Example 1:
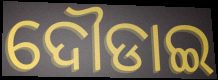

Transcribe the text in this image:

ଦୌଡାଇ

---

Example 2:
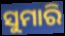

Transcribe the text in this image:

ସୁମାରି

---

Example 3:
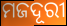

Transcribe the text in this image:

ମଜଦୂରୀ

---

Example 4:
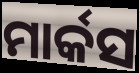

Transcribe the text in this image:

ମାର୍କସ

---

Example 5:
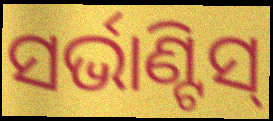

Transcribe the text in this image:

ସର୍ଭାଣ୍ଟିସ୍